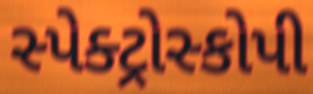
સ્પેક્ટ્રોસ્કોપી